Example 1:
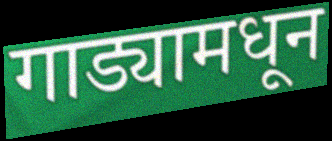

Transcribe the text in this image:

गाड्यामधून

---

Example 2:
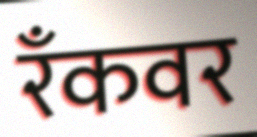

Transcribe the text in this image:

रँकवर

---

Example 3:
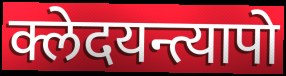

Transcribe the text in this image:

क्लेदयन्त्यापो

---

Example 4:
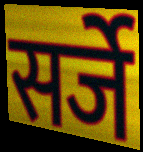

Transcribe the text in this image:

सर्जे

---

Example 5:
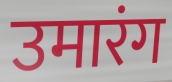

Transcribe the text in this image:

उमारंग